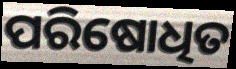
ପରିଷୋଧିତ